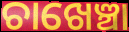
ଚାଖେଞ୍ଚା